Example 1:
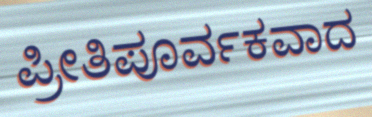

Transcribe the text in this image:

ಪ್ರೀತಿಪೂರ್ವಕವಾದ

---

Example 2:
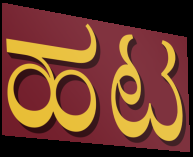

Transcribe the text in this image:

ಹಟ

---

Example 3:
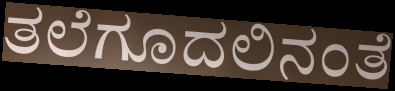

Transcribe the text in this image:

ತಲೆಗೂದಲಿನಂತೆ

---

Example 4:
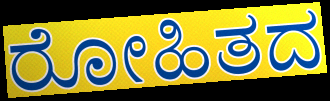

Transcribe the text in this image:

ರೋಹಿತದ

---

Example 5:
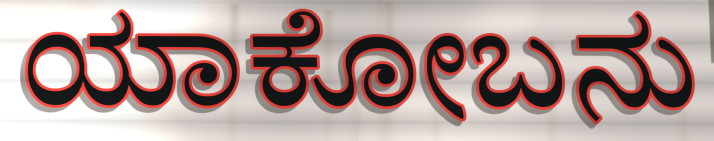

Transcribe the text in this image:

ಯಾಕೋಬನು